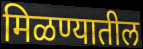
मिळण्यातील